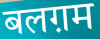
बलग़म